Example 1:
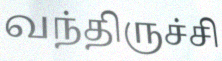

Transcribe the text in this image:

வந்திருச்சி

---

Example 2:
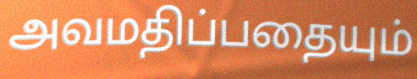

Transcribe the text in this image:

அவமதிப்பதையும்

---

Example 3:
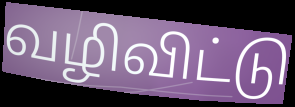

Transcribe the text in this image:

வழிவிட்டு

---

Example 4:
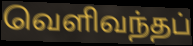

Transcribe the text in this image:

வெளிவந்தப்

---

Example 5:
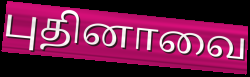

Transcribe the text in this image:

புதினாவை